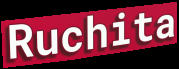
Ruchita